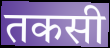
तकसी